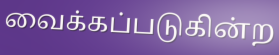
வைக்கப்படுகின்ற